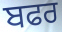
ਬਫਰ